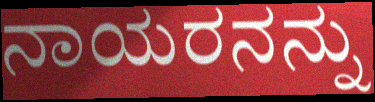
ನಾಯರನನ್ನು